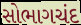
સોભાગચંદ